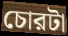
চোরটা